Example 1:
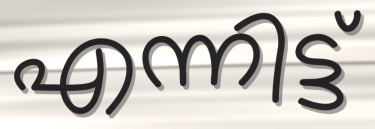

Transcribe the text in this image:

എന്നിട്ട്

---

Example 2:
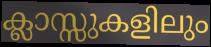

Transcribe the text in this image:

ക്ലാസ്സുകളിലും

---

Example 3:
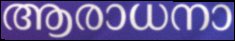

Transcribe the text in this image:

ആരാധനാ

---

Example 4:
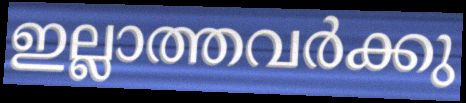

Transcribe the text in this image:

ഇല്ലാത്തവർക്കു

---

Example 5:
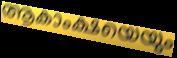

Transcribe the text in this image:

ആകാംക്ഷയെയും